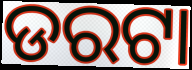
ଡରଟା